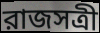
রাজসত্রী